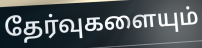
தேர்வுகளையும்